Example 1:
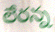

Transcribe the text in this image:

లేరన్న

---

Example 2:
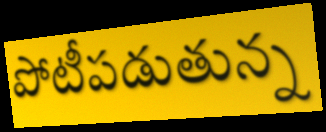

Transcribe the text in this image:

పోటీపడుతున్న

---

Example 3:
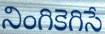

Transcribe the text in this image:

నింగికెగిసే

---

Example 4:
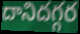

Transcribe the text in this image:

దానిదగ్గర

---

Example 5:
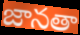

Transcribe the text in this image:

జానతా